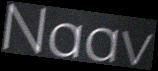
Naav